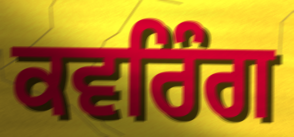
ਕਵਰਿੰਗ